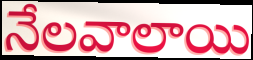
నేలవాలాయి